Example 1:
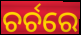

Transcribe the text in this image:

ଚର୍ଚରେ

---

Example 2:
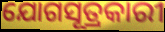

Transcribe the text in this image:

ଯୋଗସୂତ୍ରକାରୀ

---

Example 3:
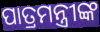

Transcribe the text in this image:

ପାତ୍ରମନ୍ତ୍ରୀଙ୍କ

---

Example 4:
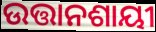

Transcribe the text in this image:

ଉତ୍ତାନଶାୟୀ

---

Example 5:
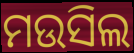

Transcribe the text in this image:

ମଉସିଲ